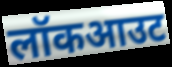
लॉकआउट